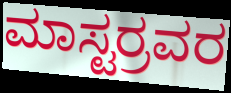
ಮಾಸ್ಟರ್ರವರ